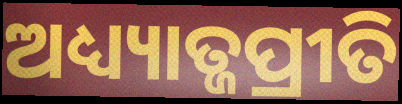
ଅଧ୍ୟ୍ୟାତ୍ଜପ୍ରୀତି